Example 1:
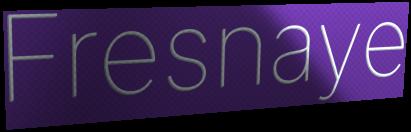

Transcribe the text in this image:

Fresnaye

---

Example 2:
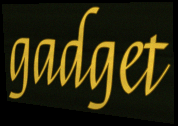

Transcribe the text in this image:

gadget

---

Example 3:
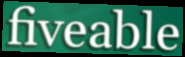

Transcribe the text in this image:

fiveable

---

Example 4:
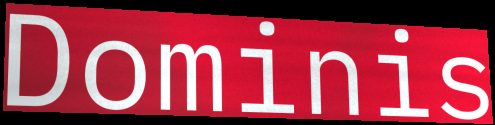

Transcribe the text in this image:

Dominis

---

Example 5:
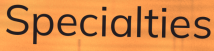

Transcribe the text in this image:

Specialties